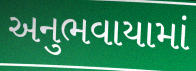
અનુભવાયામાં